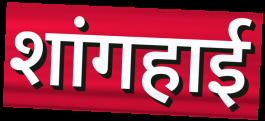
शांगहाई